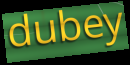
dubey